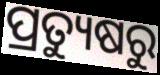
ପ୍ରତ୍ୟୁଷରୁ